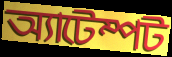
অ্যাটেম্পট